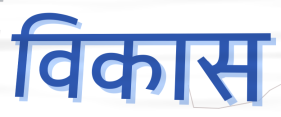
विकास